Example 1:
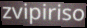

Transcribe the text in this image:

zvipiriso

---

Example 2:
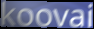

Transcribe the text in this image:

koovai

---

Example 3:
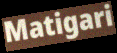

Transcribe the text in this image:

Matigari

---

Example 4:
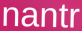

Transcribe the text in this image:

nantr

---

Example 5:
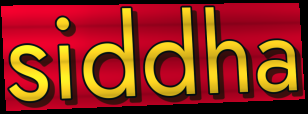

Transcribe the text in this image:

siddha